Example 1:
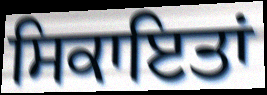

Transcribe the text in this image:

ਸਿਕਾਇਤਾਂ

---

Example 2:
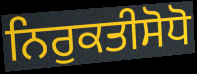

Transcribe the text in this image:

ਨਿਰੁਕਤੀਸੋਧੋ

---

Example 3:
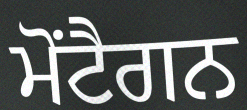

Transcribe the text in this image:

ਮੋਂਟੈਗਨ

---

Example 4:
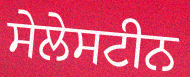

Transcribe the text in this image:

ਸੇਲੇਸਟੀਨ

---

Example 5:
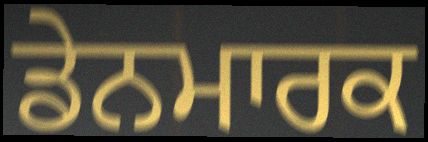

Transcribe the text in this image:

ਡੇਨਮਾਰਕ